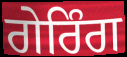
ਗੇਰਿੰਗ